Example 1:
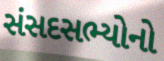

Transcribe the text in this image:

સંસદસભ્યોનો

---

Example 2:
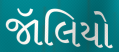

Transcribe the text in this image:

જૉલિયો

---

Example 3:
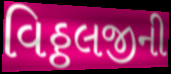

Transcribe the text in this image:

વિઠ્ઠલજીની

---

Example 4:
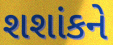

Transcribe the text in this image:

શશાંકને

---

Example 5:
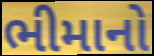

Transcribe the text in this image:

ભીમાનો